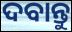
ଦବାନ୍ତୁ